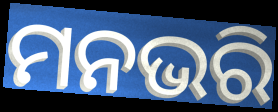
ମନଭରି